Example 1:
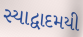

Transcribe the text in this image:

સ્યાદ્વાદમયી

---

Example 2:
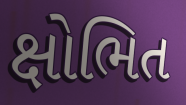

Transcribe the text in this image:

ક્ષોભિત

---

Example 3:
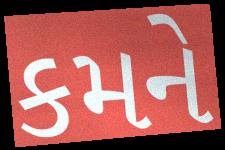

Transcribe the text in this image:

કમને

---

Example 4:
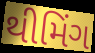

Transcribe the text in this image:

થીમિંગ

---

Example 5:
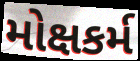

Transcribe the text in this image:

મોક્ષકર્મ